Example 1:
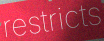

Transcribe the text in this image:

restricts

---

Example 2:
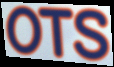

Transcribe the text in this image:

OTS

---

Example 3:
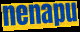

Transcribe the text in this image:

nenapu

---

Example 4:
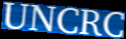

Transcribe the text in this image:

UNCRC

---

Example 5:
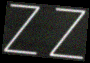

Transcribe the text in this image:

zz